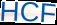
HCF